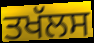
ਤਖੱਲਸ